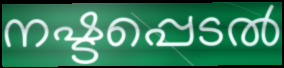
നഷ്ടപ്പെടൽ